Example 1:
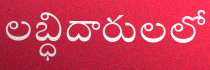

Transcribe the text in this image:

లబ్ధిదారులలో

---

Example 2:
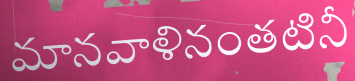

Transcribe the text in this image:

మానవాళినంతటినీ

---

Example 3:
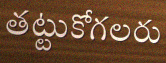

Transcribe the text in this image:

తట్టుకోగలరు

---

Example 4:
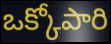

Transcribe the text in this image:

ఒక్కోపారి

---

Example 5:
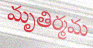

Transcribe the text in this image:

మృతిర్మమ